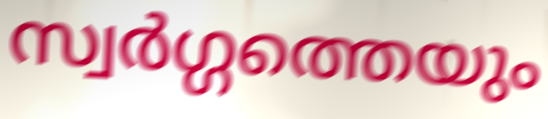
സ്വർഗ്ഗത്തെയും